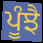
ਪੂੰਝੈ